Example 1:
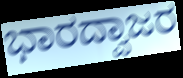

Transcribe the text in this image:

ಭಾರದ್ವಾಜರ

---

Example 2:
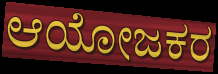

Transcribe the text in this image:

ಆಯೋಜಕರ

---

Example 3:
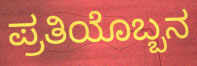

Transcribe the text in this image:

ಪ್ರತಿಯೊಬ್ಬನ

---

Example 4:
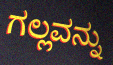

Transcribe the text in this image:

ಗಲ್ಲವನ್ನು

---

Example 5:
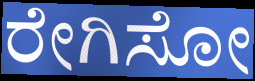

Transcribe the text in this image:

ರೇಗಿಸೋ